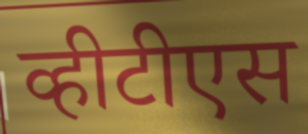
व्हीटीएस